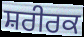
ਸ਼ਰੀਰਕ